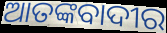
ଆତଙ୍କବାଦୀର